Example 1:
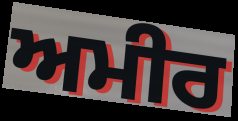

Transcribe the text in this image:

ਅਮੀਰ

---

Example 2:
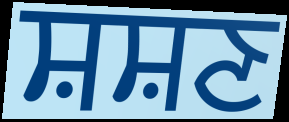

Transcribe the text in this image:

ਸ਼ਸ਼ਣ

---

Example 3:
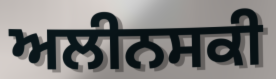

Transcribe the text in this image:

ਅਲੀਨਸਕੀ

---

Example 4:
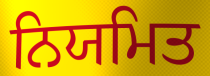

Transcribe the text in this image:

ਨਿਯਮਿਤ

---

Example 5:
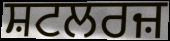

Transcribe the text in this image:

ਸ਼ਟਲਰਜ਼